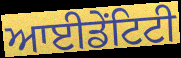
ਆਈਡੇਂਟਿਟੀ